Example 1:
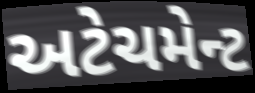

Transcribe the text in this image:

અટેચમેન્ટ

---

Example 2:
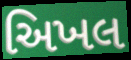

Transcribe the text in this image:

અિખલ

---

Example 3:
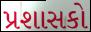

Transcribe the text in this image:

પ્રશાસકો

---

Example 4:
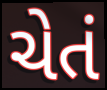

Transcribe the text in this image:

ચેતં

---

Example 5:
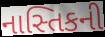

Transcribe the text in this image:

નાસ્તિકની